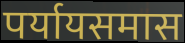
पर्यायसमास